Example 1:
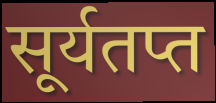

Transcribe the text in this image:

सूर्यतप्त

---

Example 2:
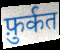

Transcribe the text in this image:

फ़ुर्कत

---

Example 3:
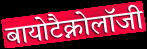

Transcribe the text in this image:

बायोटैक्नोलॉजी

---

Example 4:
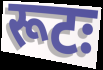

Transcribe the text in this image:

रूटः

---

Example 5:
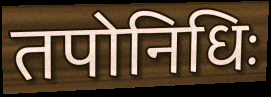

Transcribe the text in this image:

तपोनिधिः